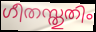
ഗീതസ്തുതിം